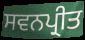
ਸਵਨਪ੍ਰੀਤ